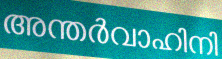
അന്തർവാഹിനി